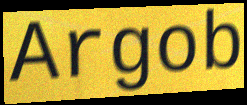
Argob